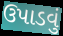
ઉપાડવું